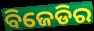
ବିଜେଡିର